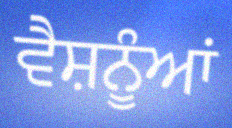
ਵੈਸ਼ਨੂੰਆਂ